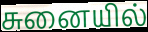
சுனையில்